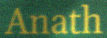
Anath